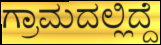
ಗ್ರಾಮದಲ್ಲಿದ್ದೆ